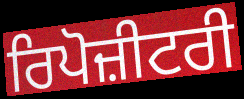
ਰਿਪੋਜ਼ੀਟਰੀ